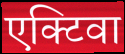
एक्टिवा